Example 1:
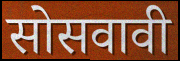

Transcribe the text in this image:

सोसवावी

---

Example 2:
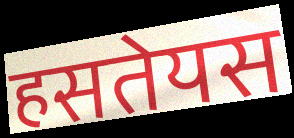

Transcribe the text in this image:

हसतेयस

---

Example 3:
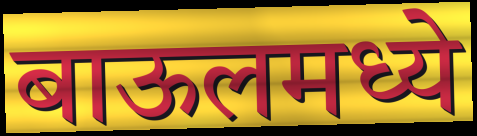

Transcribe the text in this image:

बाऊलमध्ये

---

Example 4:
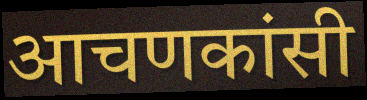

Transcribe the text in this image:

आचणकांसी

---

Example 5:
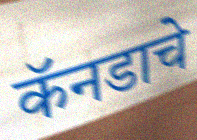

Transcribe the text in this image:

कॅनडाचे